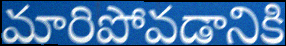
మారిపోవడానికి